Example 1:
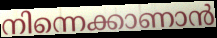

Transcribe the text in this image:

നിന്നെക്കാണാൻ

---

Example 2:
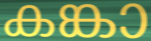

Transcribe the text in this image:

കങ്കാ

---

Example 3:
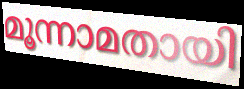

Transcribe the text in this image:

മൂന്നാമതായി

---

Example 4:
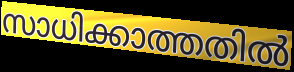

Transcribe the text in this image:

സാധിക്കാത്തതിൽ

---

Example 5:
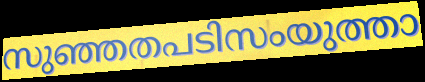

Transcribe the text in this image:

സുഞ്ഞതപടിസംയുത്താ